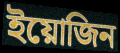
ইয়োজিন